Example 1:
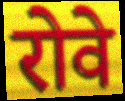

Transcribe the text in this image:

रोवे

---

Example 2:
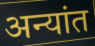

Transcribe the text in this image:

अन्यांत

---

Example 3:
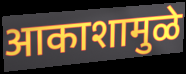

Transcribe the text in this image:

आकाशामुळे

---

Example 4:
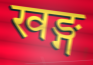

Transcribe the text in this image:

खङ्ग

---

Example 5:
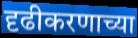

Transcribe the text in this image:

दृढीकरणाच्या